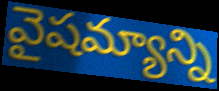
వైషమ్యాన్ని